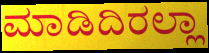
ಮಾಡಿದಿರಲ್ಲಾ